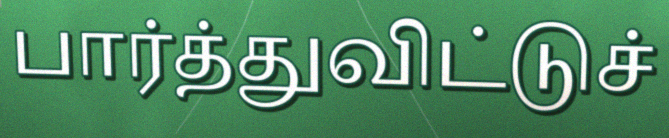
பார்த்துவிட்டுச்